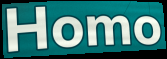
Homo